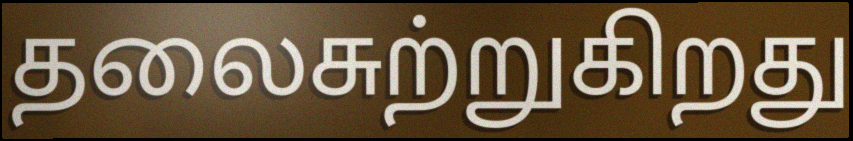
தலைசுற்றுகிறது